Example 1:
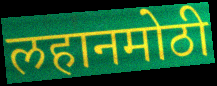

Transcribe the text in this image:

लहानमोठी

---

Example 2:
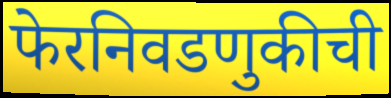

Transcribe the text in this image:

फेरनिवडणुकीची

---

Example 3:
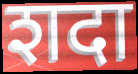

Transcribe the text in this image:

शदा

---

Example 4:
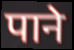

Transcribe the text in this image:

पाने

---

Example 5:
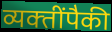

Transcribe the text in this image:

व्यक्‍तींपैकी